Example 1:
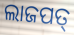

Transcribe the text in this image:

ଲାଜପତ୍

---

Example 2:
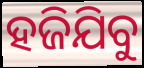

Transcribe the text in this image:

ହଜିଯିବୁ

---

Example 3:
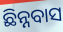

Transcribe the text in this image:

ଛିନ୍ନବାସ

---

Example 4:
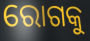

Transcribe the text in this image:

ରୋଗକୁ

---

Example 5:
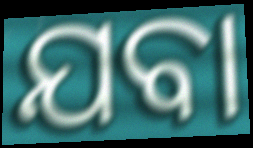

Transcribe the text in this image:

ଯବା